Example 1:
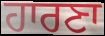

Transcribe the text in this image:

ਹਾਰਣਾ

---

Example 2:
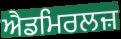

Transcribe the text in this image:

ਐਡਮਿਰਲਜ਼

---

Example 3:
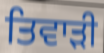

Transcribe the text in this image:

ਤਿਵਾੜੀ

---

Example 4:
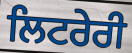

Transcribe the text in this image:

ਲਿਟਰੇਰੀ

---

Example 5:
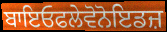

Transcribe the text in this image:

ਬਾਇਓਫਲੇਵੋਨੋਇਡਜ਼